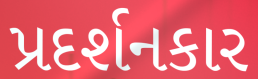
પ્રદર્શનકાર